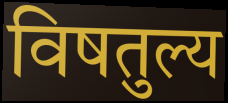
विषतुल्य